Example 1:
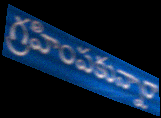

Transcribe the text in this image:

గ్రహింపకున్నారా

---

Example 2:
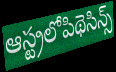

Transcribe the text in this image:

ఆస్ట్రలోపిథెసిన్స్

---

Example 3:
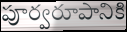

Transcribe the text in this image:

పూర్వరూపానికి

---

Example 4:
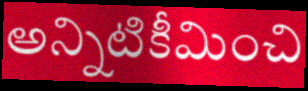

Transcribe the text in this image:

అన్నిటికీమించి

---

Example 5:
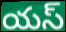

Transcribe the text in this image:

యస్